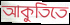
আকুতিতে